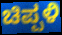
ಚಿಪ್ಪಳಿ